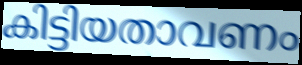
കിട്ടിയതാവണം